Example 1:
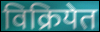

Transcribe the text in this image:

विक्रियेत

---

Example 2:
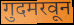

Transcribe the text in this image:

गुदमरवून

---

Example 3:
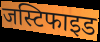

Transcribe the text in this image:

जस्टिफाइड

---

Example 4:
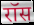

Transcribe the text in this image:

रॉस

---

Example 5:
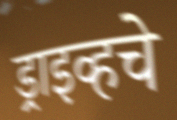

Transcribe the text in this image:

ड्राइव्हचे